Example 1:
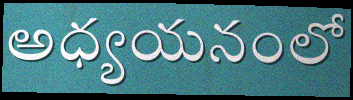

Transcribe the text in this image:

అధ్యయనంలో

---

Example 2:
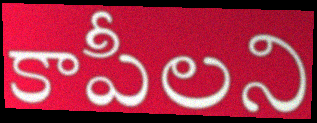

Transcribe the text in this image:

కాపీలని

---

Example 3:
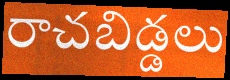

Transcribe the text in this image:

రాచబిడ్డలు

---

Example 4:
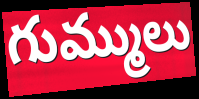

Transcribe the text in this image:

గుమ్ములు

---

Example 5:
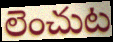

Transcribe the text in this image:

లెంచుట